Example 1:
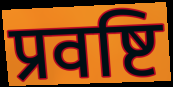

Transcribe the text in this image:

प्रवष्टि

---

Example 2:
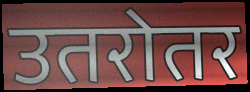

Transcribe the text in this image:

उतरोतर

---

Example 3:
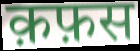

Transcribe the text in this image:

क़फ़स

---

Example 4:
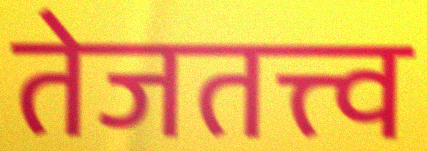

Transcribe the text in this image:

तेजतत्त्व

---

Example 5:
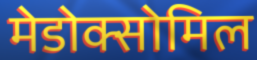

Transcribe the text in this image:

मेडोक्सोमिल